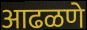
आढळणे